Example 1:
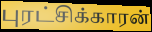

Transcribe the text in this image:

புரட்சிக்காரன்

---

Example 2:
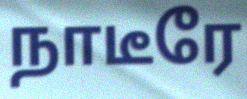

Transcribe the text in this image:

நாடீரே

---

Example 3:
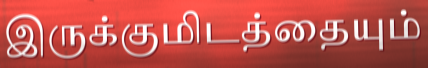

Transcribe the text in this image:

இருக்குமிடத்தையும்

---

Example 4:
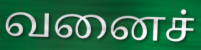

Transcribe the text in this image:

வனைச்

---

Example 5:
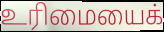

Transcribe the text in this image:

உரிமையைக்